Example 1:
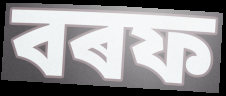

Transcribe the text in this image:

বৰফ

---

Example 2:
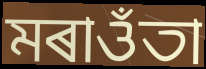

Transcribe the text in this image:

মৰাওঁতা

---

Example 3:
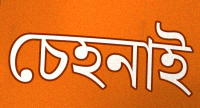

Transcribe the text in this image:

চেহনাই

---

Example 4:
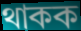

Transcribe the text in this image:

থাকক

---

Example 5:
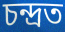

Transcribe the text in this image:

চন্দ্ৰত